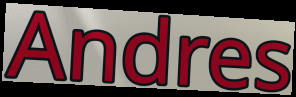
Andres